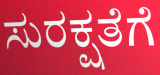
ಸುರಕ್ಷತೆಗೆ